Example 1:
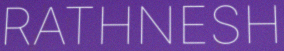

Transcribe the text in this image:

RATHNESH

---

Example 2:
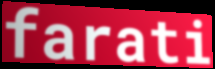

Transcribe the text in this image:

farati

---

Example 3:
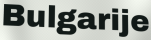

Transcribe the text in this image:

Bulgarije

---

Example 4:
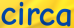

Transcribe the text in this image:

circa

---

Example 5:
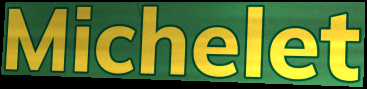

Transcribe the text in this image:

Michelet